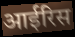
आईरिस